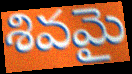
శివమై